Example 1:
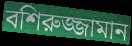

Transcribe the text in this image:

বশিরুজ্জামান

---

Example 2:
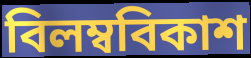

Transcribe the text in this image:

বিলম্ববিকাশ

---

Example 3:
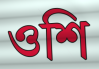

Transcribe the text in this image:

ওশি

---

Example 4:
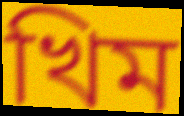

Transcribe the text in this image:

খিম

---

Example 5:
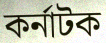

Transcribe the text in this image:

কর্নাটক